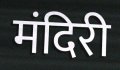
मंदिरी